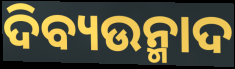
ଦିବ୍ୟଉନ୍ମାଦ